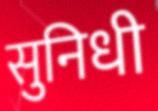
सुनिधी